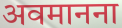
अवमानना